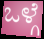
ಒಳ್ಗೆ